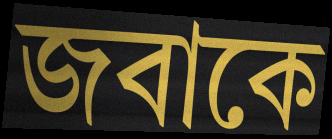
জবাকে